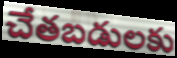
చేతబడులకు